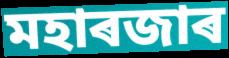
মহাৰজাৰ